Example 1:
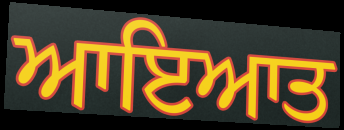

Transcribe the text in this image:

ਆਇਆਤ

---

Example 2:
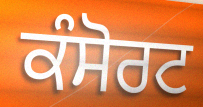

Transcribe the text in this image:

ਕੰਸੋਰਟ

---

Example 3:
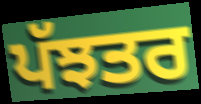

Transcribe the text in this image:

ਪੱਝਤਰ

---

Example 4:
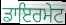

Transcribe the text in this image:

ਡਾਇਰਮੇਟ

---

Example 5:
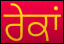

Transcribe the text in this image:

ਰੇਕਾਂ